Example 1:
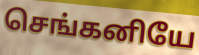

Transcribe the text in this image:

செங்கனியே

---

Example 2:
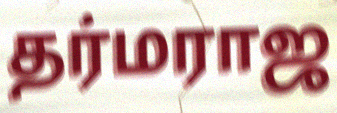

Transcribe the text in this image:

தர்மராஜ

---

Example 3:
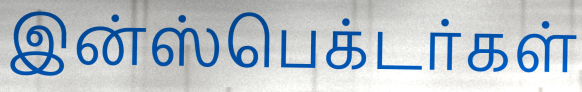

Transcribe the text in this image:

இன்ஸ்பெக்டர்கள்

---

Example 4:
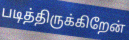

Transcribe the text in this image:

படித்திருக்கிறேன்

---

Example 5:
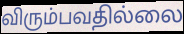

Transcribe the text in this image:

விரும்பவதில்லை